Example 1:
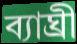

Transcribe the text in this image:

ব্যাঘ্ৰী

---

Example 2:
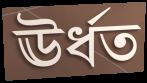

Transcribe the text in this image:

ঊৰ্ধত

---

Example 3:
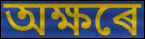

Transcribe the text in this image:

অক্ষৰে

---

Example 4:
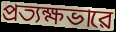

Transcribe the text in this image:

প্ৰত্যক্ষভাৱে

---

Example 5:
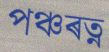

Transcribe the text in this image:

পঞ্চৰত্ন